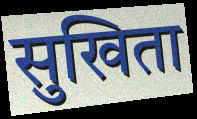
सुखिता